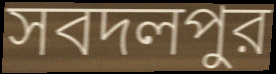
সবদলপুর